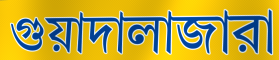
গুয়াদালাজারা